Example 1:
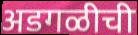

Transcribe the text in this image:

अडगळीची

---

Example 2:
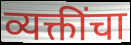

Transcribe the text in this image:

व्यक्तींचा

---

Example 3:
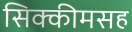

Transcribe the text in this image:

सिक्कीमसह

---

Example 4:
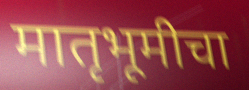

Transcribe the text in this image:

मातृभूमीचा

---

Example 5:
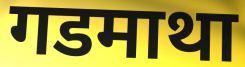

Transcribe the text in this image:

गडमाथा